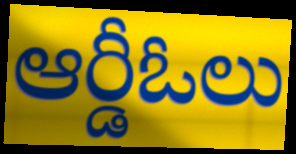
ఆర్డీఓలు